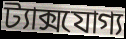
ট্যাক্সযোগ্য